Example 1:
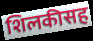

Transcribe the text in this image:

शिलकीसह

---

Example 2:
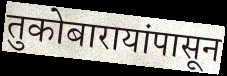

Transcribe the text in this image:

तुकोबारायांपासून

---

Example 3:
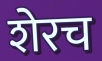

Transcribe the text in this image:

शेरच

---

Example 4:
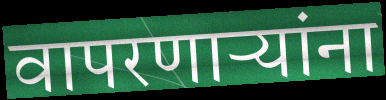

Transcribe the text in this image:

वापरणाऱ्यांना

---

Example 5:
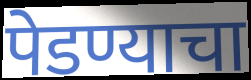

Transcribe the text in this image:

पेडण्याचा